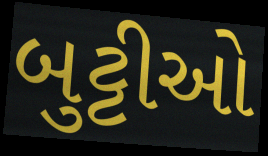
બુટ્ટીઓ